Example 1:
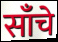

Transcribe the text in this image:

साँचे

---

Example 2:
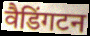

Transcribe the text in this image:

वैडिंगटन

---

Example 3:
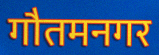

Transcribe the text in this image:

गौतमनगर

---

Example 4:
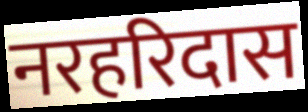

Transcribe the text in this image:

नरहरिदास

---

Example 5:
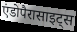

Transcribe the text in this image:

एंडोपैरासाइट्स